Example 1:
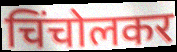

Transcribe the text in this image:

चिंचोलकर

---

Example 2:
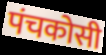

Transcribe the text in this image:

पंचकोसी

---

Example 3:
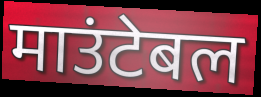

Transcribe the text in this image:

माउंटेबल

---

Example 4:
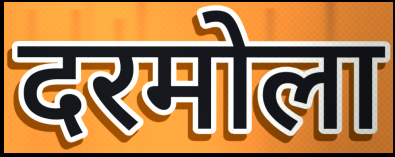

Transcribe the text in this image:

दरमोला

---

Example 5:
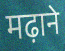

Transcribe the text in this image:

मढ़ाने